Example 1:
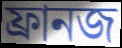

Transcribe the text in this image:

ফ্রানজ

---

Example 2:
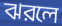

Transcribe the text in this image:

ঝরলে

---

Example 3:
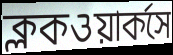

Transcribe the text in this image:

ক্লকওয়ার্কসে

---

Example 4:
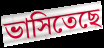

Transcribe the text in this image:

ভাসিতেছে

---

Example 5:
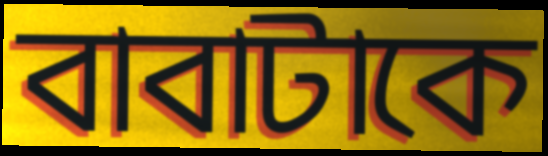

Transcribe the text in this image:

বাবাটাকে